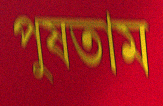
পুষতাম